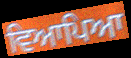
ਵਿਆਪਿਆ